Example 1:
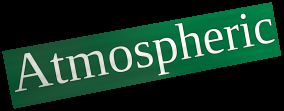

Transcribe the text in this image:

Atmospheric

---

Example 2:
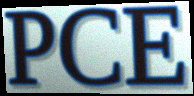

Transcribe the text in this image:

PCE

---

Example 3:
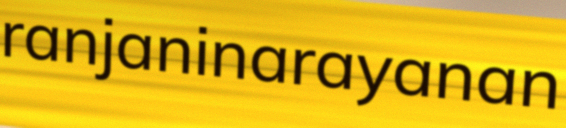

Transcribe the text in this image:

ranjaninarayanan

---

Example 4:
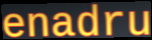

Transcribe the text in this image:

enadru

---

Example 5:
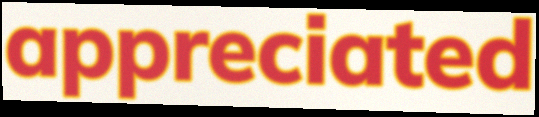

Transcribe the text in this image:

appreciated